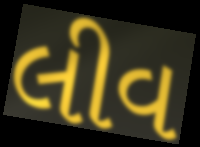
લીવ